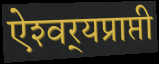
ऐश्वर्यप्राप्ती